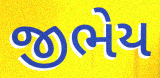
જીભેય